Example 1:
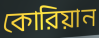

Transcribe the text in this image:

কোরিয়ান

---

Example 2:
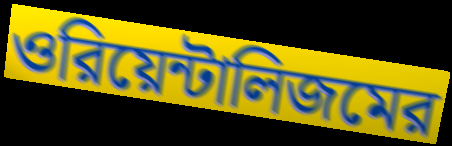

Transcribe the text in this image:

ওরিয়েন্টালিজমের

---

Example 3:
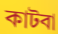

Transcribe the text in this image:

কাটবা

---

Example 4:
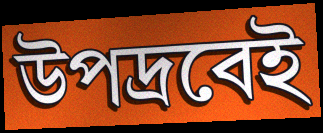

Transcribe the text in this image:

উপদ্রবেই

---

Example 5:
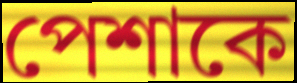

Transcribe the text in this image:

পেশাকে